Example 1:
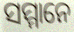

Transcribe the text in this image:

ସମ୍ମାନେ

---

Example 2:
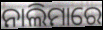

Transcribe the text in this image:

ନାଲିମାରେ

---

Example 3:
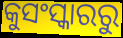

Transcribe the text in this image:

କୁସଂସ୍କାରରୁ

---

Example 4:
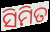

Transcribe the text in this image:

ସିମିତ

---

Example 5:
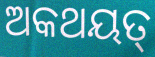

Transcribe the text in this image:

ଅକଥୟତ୍